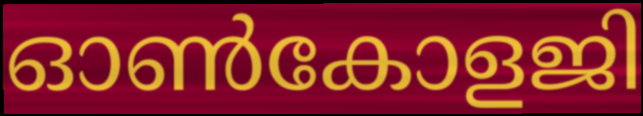
ഓൺകോളജി